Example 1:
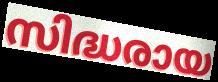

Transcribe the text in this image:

സിദ്ധരായ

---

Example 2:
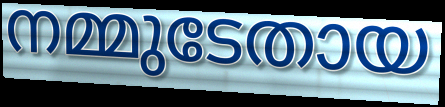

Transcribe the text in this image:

നമ്മുടേതായ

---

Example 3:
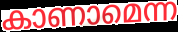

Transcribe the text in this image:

കാണാമെന്ന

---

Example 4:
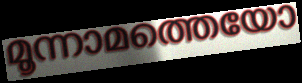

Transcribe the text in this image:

മൂന്നാമത്തെയോ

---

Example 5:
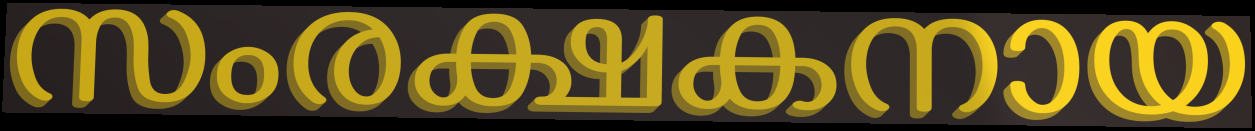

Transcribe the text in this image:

സംരക്ഷകനായ